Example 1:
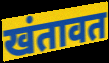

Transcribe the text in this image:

खंतावत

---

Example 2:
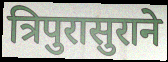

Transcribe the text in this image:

त्रिपुरासुराने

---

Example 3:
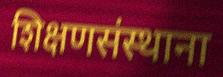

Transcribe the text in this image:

शिक्षणसंस्थाना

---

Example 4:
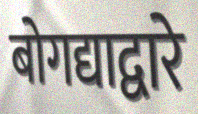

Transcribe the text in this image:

बोगद्याद्वारे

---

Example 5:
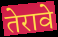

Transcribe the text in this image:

तेरावे